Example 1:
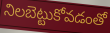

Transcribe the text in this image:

నిలబెట్టుకోవడంతో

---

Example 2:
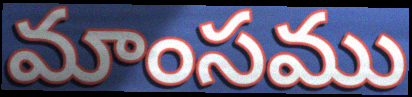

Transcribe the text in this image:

మాంసము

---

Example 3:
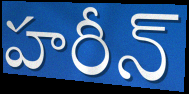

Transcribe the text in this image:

హరీన్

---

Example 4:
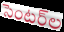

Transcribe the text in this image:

సెంటర్‌ల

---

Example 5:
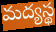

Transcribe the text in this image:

మద్యస్థ